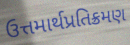
ઉત્તમાર્થપ્રતિક્રમણ